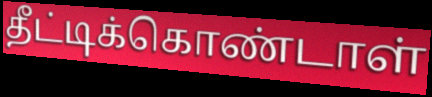
தீட்டிக்கொண்டாள்